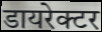
डायरेक्‍टर